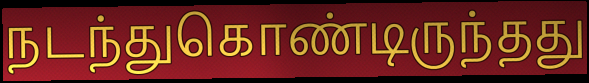
நடந்துகொண்டிருந்தது